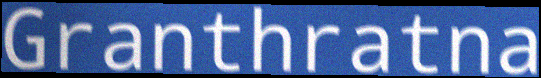
Granthratna